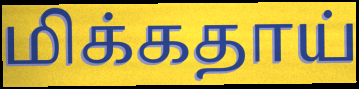
மிக்கதாய்